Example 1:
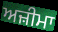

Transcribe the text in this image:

ਅਜ਼ੀਮਾ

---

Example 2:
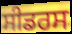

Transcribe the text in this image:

ਸੀਡਰਸ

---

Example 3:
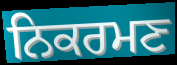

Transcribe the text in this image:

ਨਿਕਰਮਣ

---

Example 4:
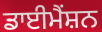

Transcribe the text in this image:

ਡਾਈਮੈਂਸ਼ਨ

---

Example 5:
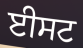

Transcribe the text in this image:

ਈਸਟ